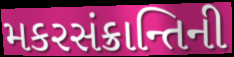
મકરસંક્રાન્તિની